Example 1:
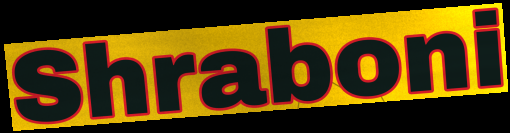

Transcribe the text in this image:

Shraboni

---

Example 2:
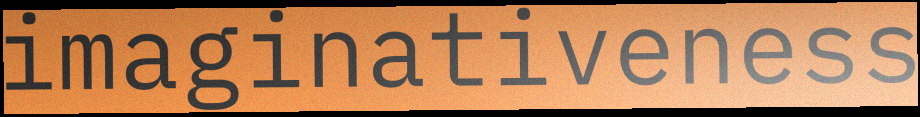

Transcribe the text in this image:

imaginativeness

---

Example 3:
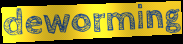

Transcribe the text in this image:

deworming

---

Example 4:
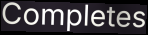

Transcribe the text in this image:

Completes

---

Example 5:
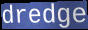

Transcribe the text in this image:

dredge